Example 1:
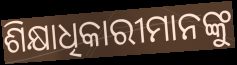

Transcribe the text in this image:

ଶିକ୍ଷାଧିକାରୀମାନଙ୍କୁ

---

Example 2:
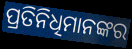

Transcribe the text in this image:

ପ୍ରତିନିଧିମାନଙ୍କର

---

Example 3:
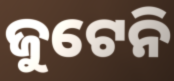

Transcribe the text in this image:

ଜୁଟେନି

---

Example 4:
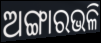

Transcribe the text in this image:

ଅଙ୍ଗାରଭଳି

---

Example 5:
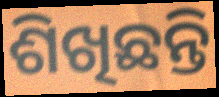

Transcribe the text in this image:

ଶିଖିଛନ୍ତି